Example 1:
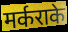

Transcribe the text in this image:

मर्कराके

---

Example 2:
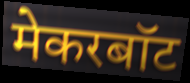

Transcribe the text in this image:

मेकरबॉट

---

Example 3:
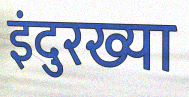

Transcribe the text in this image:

इंदुरख्या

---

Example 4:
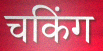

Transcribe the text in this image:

चकिंग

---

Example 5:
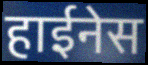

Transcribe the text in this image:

हाईनेस